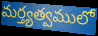
మర్త్యత్వములో